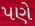
પણે